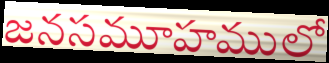
జనసమూహములో